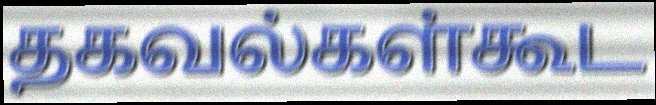
தகவல்கள்கூட